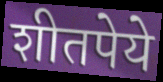
शीतपेये